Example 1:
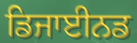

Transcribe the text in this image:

ਡਿਜਾਈਨਡ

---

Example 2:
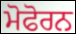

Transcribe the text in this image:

ਮੋਫੋਰਨ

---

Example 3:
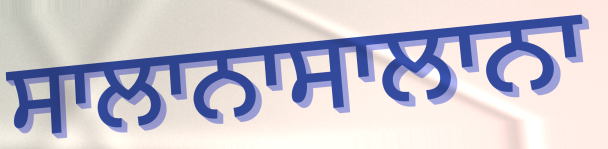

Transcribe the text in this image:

ਸਾਲਾਨਾਸਾਲਾਨਾ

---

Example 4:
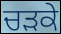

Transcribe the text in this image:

ਚੜਕੇ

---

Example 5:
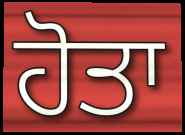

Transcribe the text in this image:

ਹੋਤਾ